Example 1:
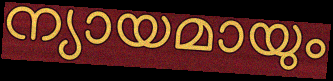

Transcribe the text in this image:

ന്യായമായും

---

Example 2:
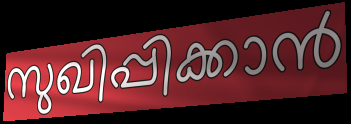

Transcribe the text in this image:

സുഖിപ്പിക്കാൻ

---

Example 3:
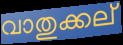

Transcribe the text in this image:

വാതുക്കല്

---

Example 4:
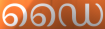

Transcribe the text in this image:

ഡൈ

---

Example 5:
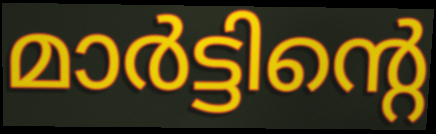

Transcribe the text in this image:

മാർട്ടിന്റെ